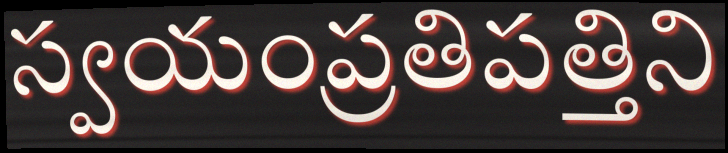
స్వయంప్రతిపత్తిని